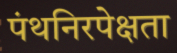
पंथनिरपेक्षता